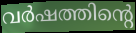
വർഷത്തിന്റെ